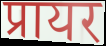
प्रायर